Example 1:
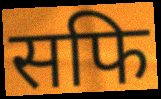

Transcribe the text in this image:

सफि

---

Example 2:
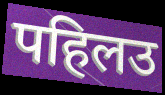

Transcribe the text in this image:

पहिलउ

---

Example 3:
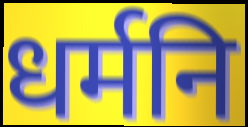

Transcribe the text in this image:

धर्मनि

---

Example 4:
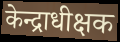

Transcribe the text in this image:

केन्द्राधीक्षक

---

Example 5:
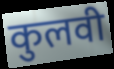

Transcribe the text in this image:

कुलवी